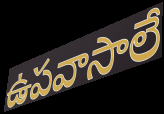
ఉపవాసాలే